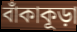
বাঁকাকূড়া